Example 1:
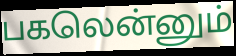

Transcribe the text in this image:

பகலென்னும்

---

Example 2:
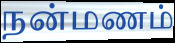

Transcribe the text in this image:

நன்மணம்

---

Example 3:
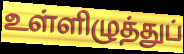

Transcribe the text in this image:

உள்ளிழுத்துப்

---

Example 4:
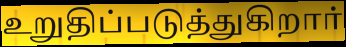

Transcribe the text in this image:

உறுதிப்படுத்துகிறார்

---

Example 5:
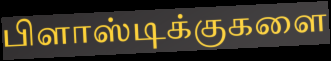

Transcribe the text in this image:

பிளாஸ்டிக்குகளை